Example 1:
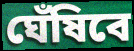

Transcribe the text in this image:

ঘেঁষিবে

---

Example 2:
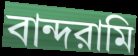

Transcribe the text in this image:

বান্দরামি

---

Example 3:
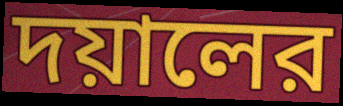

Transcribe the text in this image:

দয়ালের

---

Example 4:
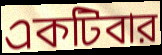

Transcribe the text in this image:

একটিবার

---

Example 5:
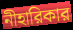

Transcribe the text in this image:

নীহারিকার